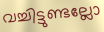
വച്ചിട്ടുണ്ടല്ലോ